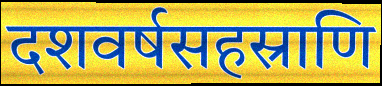
दशवर्षसहस्राणि